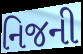
નિજની